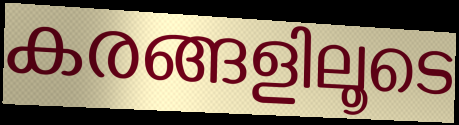
കരങ്ങളിലൂടെ